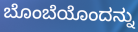
ಬೊಂಬೆಯೊಂದನ್ನು